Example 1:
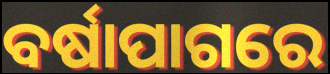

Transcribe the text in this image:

ବର୍ଷାପାଗରେ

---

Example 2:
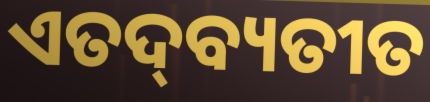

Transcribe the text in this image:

ଏତଦ୍‌ବ୍ୟତୀତ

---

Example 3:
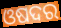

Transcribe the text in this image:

ଓଷଦର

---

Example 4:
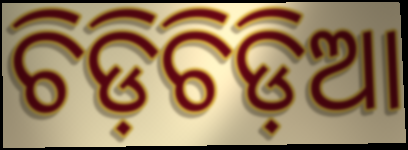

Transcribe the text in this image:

ଚିଡ଼ିଚିଡ଼ିଆ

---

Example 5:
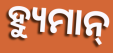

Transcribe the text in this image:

ହ୍ୟୁମାନ୍